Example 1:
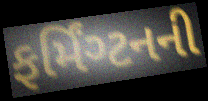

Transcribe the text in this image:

ફર્મિંગ્ટનની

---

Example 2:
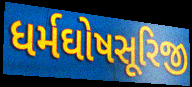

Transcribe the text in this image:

ધર્મઘોષસૂરિજી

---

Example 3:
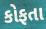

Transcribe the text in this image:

કોફતા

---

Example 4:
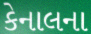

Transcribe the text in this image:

કેનાલના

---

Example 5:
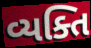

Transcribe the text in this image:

વ્યક્તિ